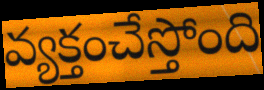
వ్యక్తంచేస్తోంది